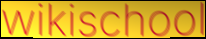
wikischool